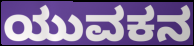
ಯುವಕನ